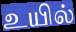
உயில்